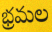
భ్రమల